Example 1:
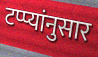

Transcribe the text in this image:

टप्प्यांनुसार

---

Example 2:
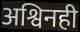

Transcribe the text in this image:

अश्विनही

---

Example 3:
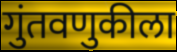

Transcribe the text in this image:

गुंतवणुकीला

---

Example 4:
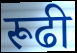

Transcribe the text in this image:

रूढी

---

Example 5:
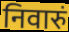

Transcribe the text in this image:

निवारुं